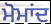
ਮੋਮਾਂਦ